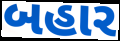
બહાર